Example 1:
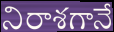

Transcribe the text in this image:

నిరాశగానే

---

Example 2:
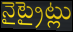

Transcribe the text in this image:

నైట్రైట్లు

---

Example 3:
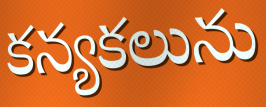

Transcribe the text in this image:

కన్యకలును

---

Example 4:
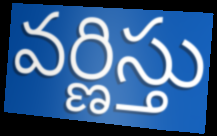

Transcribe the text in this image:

వర్ణిస్తు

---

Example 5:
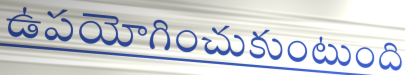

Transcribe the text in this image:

ఉపయోగించుకుంటుంది